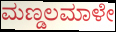
ಮಣ್ಡಲಮಾಳೇ